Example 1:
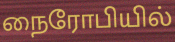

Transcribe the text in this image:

நைரோபியில்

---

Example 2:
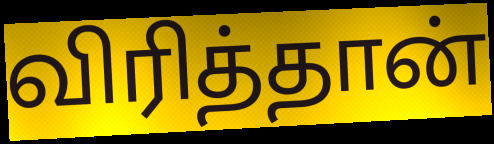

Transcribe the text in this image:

விரித்தான்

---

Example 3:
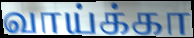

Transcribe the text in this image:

வாய்க்கா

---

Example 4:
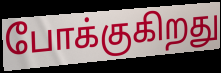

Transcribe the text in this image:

போக்குகிறது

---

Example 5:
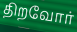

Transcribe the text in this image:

திறவோர்